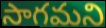
సాగమని